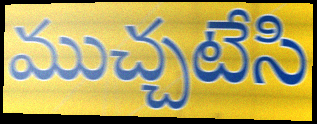
ముచ్చటేసి